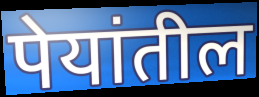
पेयांतील